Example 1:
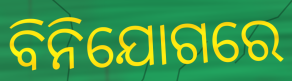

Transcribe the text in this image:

ବିନିଯୋଗରେ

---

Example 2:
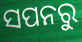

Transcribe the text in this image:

ସପନରୁ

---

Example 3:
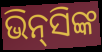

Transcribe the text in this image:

ଭିନ୍‍ସିଙ୍କ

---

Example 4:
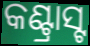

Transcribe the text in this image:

କଣ୍ଟ୍ରାସ୍ଟ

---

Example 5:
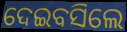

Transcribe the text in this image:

ଦେଇବସିଲେ